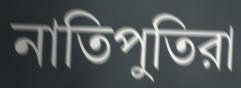
নাতিপুতিরা